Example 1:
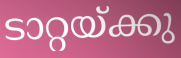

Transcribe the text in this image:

ടാറ്റയ്ക്കു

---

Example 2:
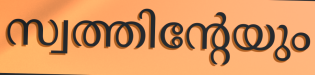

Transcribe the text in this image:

സ്വത്തിന്റേയും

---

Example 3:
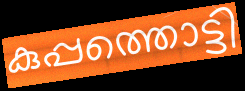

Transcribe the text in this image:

കുപ്പത്തൊട്ടി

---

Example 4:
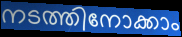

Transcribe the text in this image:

നടത്തിനോക്കാം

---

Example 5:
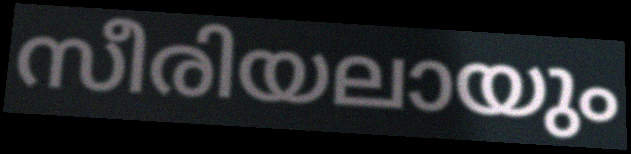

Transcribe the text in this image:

സീരിയലായും